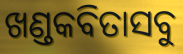
ଖଣ୍ଡକବିତାସବୁ